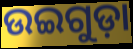
ଉଇଗୁଡ଼ା